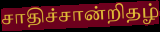
சாதிச்சான்றிதழ்